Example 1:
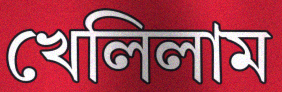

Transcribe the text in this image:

খেলিলাম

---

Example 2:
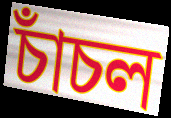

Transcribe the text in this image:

চাঁচল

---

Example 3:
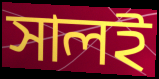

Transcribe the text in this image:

সালই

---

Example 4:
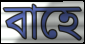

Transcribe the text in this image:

বাহে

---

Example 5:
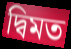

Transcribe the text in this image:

দ্বিমত